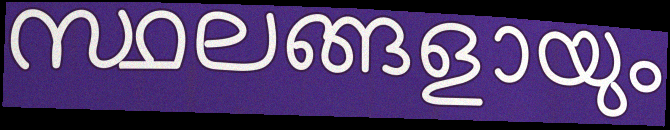
സ്ഥലങ്ങളായും